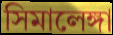
সিমালেঙ্গা